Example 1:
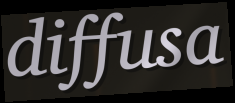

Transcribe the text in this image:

diffusa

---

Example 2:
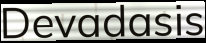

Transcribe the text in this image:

Devadasis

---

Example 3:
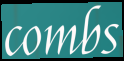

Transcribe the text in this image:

combs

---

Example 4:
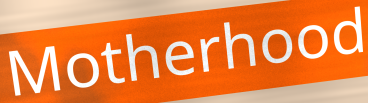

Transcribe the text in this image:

Motherhood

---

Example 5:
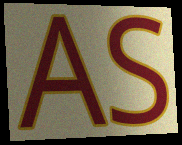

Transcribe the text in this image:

AS